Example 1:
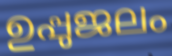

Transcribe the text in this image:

ഉപ്പുജലം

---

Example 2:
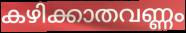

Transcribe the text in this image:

കഴിക്കാതവണ്ണം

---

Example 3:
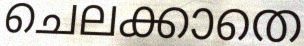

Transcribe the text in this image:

ചെലക്കാതെ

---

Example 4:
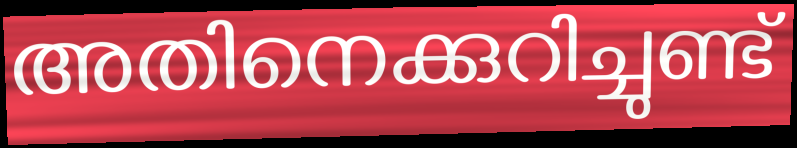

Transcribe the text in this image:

അതിനെക്കുറിച്ചുണ്ട്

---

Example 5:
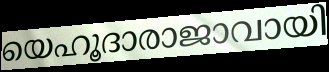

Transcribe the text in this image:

യെഹൂദാരാജാവായി